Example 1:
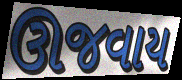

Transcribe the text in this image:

ઊજવાય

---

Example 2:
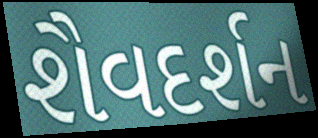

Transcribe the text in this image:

શૈવદર્શન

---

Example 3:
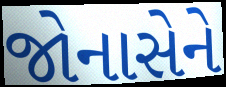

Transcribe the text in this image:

જોનાસેને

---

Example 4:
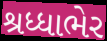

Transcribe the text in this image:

શ્રધ્ધાભેર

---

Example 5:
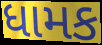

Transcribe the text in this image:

ધામક